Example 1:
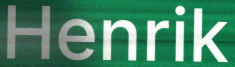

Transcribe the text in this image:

Henrik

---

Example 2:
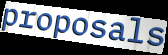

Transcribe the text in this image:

proposals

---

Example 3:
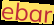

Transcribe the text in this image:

ebar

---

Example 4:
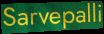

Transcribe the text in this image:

Sarvepalli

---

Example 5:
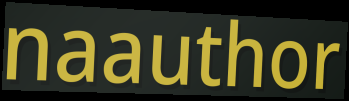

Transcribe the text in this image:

naauthor